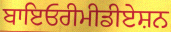
ਬਾਇਓਰੀਮੀਡੀਏਸ਼ਨ